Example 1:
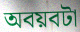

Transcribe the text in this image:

অবয়বটা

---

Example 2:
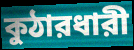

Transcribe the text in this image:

কুঠারধারী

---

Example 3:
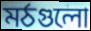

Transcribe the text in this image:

মঠগুলো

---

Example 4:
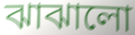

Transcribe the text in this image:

ঝাঝালো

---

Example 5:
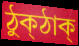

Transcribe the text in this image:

ঠুক্ঠাক্